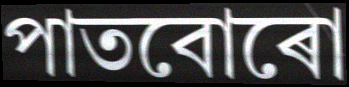
পাতবোৰো